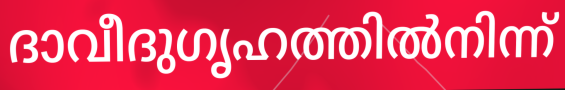
ദാവീദുഗൃഹത്തിൽനിന്ന്